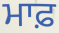
ਮਾਫ਼